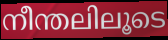
നീന്തലിലൂടെ